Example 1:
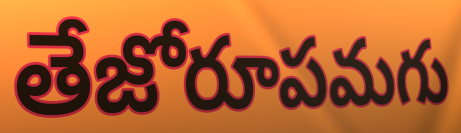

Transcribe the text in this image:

తేజోరూపమగు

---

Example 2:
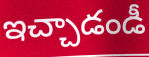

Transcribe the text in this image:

ఇచ్చాడండీ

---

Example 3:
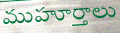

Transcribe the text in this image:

ముహూర్తాలు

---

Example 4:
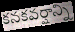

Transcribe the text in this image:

కనకవర్షాన్ని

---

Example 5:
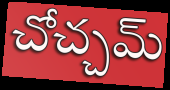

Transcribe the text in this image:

చోచ్చమ్